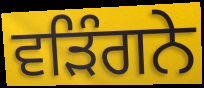
ਵੜਿੰਗਨੇ